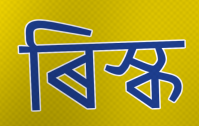
ৰিস্ক